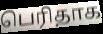
பெரிதாக